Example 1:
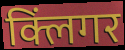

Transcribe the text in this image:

क्लिंगर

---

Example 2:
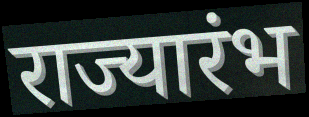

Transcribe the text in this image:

राज्यारंभ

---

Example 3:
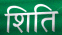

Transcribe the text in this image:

शिति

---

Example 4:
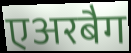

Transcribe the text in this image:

एअरबैग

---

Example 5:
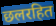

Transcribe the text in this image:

छलरहित